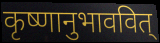
कृष्णानुभाववित्